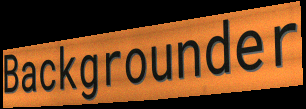
Backgrounder